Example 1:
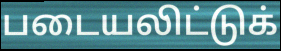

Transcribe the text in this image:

படையலிட்டுக்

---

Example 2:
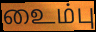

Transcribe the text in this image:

உைம்பு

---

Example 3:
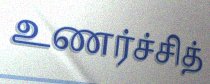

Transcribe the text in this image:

உணர்ச்சித்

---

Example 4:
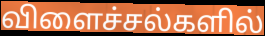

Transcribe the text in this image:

விளைச்சல்களில்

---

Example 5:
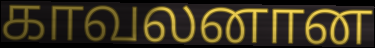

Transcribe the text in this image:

காவலனான